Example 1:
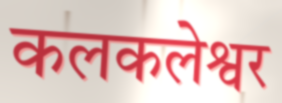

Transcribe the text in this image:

कलकलेश्वर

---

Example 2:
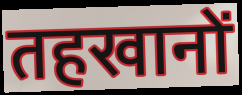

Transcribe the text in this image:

तहखानों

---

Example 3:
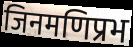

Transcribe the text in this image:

जिनमणिप्रभ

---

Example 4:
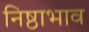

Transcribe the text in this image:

निष्ठाभाव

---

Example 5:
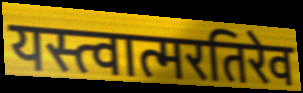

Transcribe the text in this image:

यस्त्वात्मरतिरेव